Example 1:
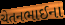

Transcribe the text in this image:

ચેતનભાઈના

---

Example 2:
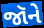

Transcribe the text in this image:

જૉને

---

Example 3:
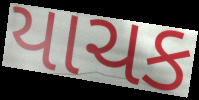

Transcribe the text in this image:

યાચક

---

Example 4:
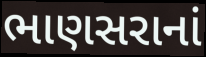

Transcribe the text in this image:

ભાણસરાનાં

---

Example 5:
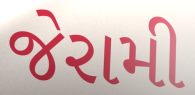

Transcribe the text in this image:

જેરામી